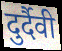
दुर्दैवी